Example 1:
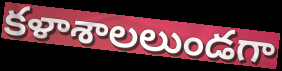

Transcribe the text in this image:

కళాశాలలుండగా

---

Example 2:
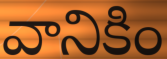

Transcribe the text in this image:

వానికిం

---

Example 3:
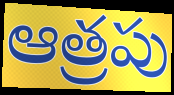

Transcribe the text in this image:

ఆత్రపు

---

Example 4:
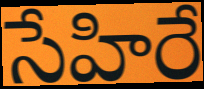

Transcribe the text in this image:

సేహిరే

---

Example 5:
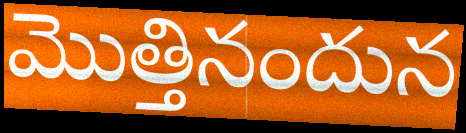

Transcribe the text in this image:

మొత్తినందున